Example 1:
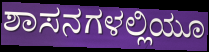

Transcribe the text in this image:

ಶಾಸನಗಳಲ್ಲಿಯೂ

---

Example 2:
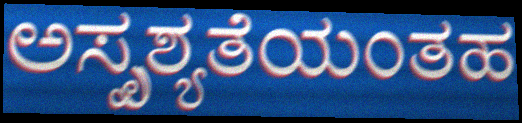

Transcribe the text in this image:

ಅಸ್ಪೃಶ್ಯತೆಯಂತಹ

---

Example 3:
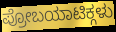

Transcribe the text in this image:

ಪ್ರೋಬಯಾಟಿಕ್ಗಳು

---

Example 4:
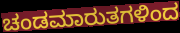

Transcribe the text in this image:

ಚಂಡಮಾರುತಗಳಿಂದ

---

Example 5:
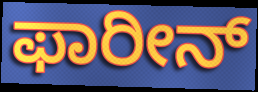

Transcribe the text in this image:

ಫಾರೀನ್